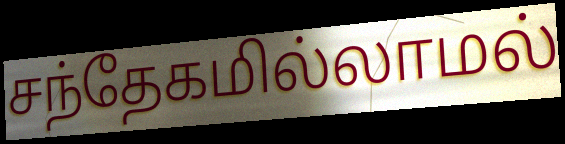
சந்தேகமில்லாமல்